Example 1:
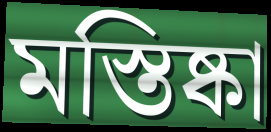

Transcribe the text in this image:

মস্তিষ্কা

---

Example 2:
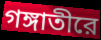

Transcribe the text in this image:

গঙ্গাতীরে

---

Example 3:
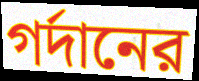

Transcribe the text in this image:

গর্দানের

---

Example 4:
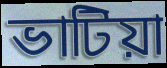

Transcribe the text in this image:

ভাটিয়া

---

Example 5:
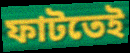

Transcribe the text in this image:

ফাটতেই